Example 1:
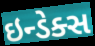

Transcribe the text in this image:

ઇન્ડેક્સ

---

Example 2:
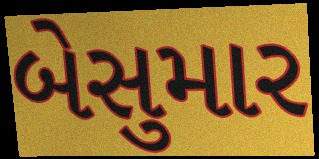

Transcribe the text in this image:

બેસુમાર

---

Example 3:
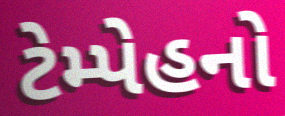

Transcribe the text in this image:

ટેમ્પેહનો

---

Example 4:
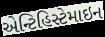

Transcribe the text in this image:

એન્ટિહિસ્ટેમાઇન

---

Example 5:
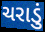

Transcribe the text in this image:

ચરાડું